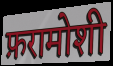
फ़रामोशी